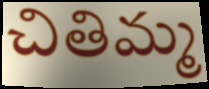
చితిమ్మ